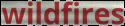
wildfires